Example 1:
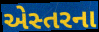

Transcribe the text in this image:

એસ્તરના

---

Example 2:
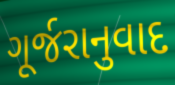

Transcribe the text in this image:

ગૂર્જરાનુવાદ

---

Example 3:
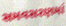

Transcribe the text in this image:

સમવસરણમાં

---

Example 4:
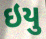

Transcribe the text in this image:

ઇયુ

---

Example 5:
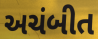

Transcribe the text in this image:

અચંબીત